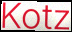
Kotz